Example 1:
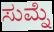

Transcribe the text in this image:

ಸುಮ್ನೆ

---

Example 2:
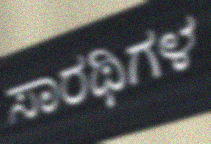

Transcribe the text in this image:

ಸಾರಥಿಗಳ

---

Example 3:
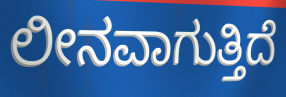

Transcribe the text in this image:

ಲೀನವಾಗುತ್ತಿದೆ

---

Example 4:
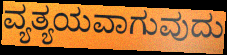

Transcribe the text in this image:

ವ್ಯತ್ಯಯವಾಗುವುದು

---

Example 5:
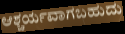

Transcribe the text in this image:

ಆಶ್ಚರ್ಯವಾಗಬಹುದು